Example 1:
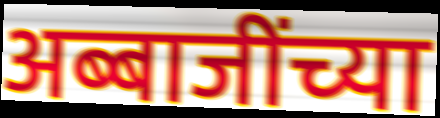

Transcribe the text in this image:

अब्बाजींच्या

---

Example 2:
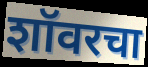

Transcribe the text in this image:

शॉवरचा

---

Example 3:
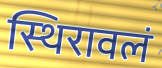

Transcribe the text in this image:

स्थिरावलं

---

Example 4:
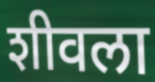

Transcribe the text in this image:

शीवला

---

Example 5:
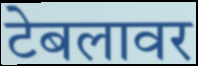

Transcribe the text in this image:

टेबलावर